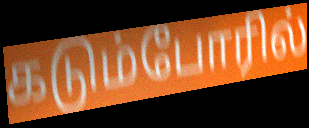
கடும்போரில்